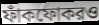
ফাঁকফোকরও